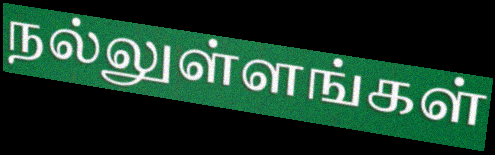
நல்லுள்ளங்கள்